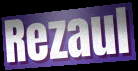
Rezaul